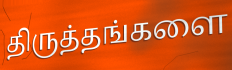
திருத்தங்களை